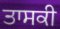
ਤਾਸਕੀ